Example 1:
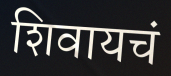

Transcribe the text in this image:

शिवायचं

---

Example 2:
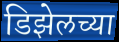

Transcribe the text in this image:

डिझेलच्या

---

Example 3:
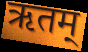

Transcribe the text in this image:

ऋतम्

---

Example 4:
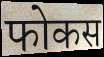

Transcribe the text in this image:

फोकस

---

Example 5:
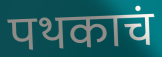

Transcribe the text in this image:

पथकाचं